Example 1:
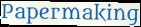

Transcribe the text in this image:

Papermaking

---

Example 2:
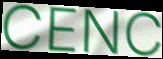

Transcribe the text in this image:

CENC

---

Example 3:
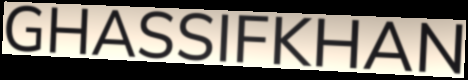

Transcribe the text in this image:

GHASSIFKHAN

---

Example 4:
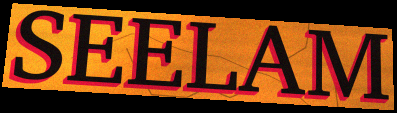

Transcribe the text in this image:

SEELAM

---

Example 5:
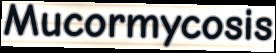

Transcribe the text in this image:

Mucormycosis